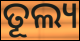
ତୂଲ୍ୟ